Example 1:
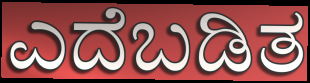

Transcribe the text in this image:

ಎದೆಬಡಿತ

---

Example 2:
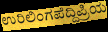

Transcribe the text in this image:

ಉರಿಲಿಂಗಪೆದ್ದಿಪ್ರಿಯ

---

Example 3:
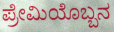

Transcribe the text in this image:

ಪ್ರೇಮಿಯೊಬ್ಬನ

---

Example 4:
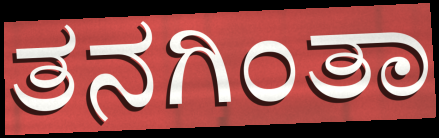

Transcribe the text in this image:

ತನಗಿಂತಾ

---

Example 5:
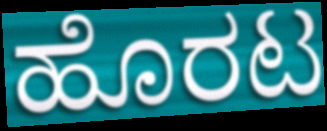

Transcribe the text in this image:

ಹೊರಟ